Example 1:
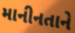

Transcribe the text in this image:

માનીનતાને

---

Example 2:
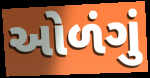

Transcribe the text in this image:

ઓળંગું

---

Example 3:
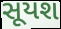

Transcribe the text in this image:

સૂયશ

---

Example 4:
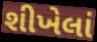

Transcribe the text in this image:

શીખેલાં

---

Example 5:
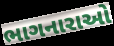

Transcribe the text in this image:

ભાગનારાઓ